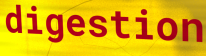
digestion